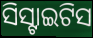
ସିସ୍ଟାଇଟିସ